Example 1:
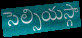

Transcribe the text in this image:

సెల్సియస్గా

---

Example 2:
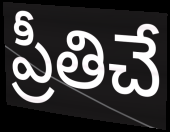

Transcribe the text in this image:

ప్రీతిచే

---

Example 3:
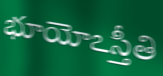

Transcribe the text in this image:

భూయోఽస్తీతి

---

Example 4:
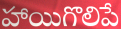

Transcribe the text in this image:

హాయిగొలిపే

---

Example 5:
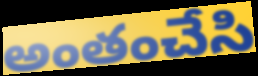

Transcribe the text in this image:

అంతంచేసి